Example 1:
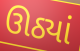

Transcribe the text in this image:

ઊઠ્યાં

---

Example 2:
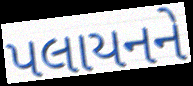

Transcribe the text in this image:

પલાયનને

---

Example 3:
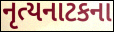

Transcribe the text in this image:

નૃત્યનાટકના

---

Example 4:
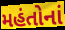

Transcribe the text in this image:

મહંતોનાં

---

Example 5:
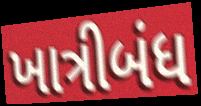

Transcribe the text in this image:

ખાત્રીબંધ